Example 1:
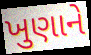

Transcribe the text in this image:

ખુણાને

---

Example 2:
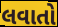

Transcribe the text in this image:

લવાતો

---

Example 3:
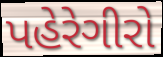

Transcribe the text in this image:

પહેરેગીરો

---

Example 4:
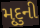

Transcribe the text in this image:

મૃદુની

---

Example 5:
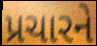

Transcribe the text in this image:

પ્રચારને